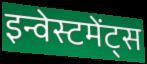
इन्वेस्टमेंट्स